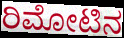
ರಿಮೋಟಿನ